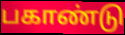
பகாண்டு